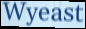
Wyeast